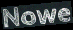
Nowe